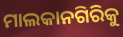
ମାଲକାନଗିରିକୁ